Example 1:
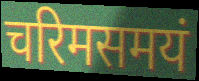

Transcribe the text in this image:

चरिमसमयं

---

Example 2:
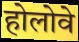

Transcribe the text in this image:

होलोवे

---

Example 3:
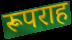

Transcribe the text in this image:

रूपराह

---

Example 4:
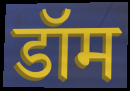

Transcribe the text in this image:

डॉम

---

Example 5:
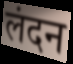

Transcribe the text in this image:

लंदन